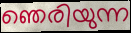
ഞെരിയുന്ന